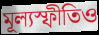
মূল্যস্ফীতিও